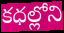
కధల్లోని